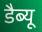
डैब्यू